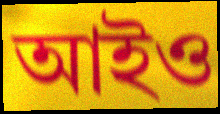
আইও